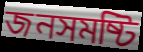
জনসমষ্টি